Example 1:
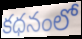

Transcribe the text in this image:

కధనంలో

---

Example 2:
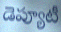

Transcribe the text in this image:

డెప్యూటీ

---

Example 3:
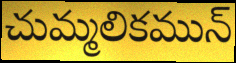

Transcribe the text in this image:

చుమ్మలికమున్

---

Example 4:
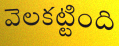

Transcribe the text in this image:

వెలకట్టింది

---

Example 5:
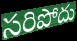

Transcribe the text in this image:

సరిపోదు